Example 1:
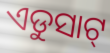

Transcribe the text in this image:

ଏଡୁସାଟ୍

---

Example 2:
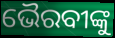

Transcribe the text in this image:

ଭୈରବୀଙ୍କୁ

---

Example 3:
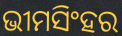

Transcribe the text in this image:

ଭୀମସିଂହର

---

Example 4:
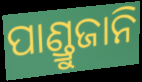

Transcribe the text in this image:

ପାଣ୍ଡ୍ରୁଜାନି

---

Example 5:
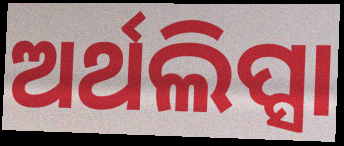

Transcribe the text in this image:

ଅର୍ଥଲିପ୍ସା